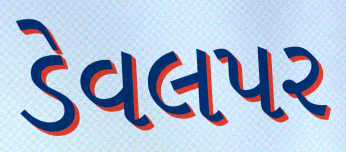
ડેવલપર